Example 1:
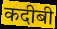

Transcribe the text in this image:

कदीबी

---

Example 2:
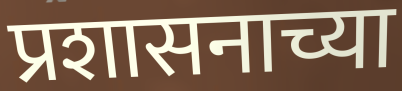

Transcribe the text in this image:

प्रशासनाच्या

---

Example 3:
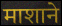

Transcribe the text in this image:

माशाने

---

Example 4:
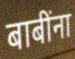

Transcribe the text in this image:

बाबींना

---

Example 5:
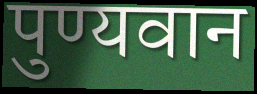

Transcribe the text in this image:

पुण्यवान